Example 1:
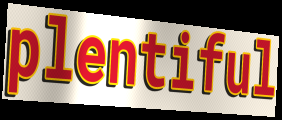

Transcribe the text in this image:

plentiful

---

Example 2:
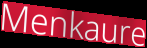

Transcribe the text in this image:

Menkaure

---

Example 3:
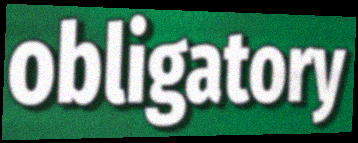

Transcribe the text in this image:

obligatory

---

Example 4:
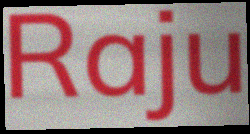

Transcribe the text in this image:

Raju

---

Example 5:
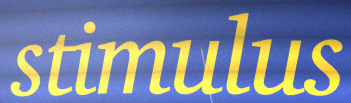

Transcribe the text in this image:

stimulus